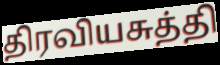
திரவியசுத்தி